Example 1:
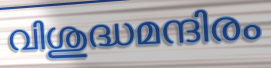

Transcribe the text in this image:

വിശുദ്ധമന്ദിരം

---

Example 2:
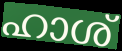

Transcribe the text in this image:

ഹാശ്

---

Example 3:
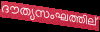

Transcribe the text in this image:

ദൗത്യസംഘത്തില്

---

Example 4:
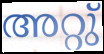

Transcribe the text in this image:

അറ്റു്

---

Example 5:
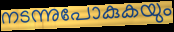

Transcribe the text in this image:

നടന്നുപോകുകയും